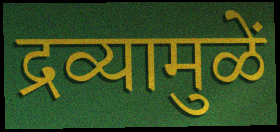
द्रव्यामुळें